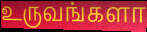
உருவங்களா